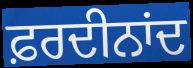
ਫ਼ਰਦੀਨਾਂਦ